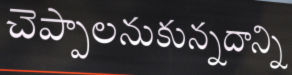
చెప్పాలనుకున్నదాన్ని